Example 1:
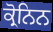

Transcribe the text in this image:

ਕ੍ਰੋਨਿਨ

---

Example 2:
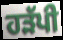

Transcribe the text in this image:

ਹੜੱਪੀ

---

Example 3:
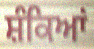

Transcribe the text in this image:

ਸ਼ੰਕਿਆਂ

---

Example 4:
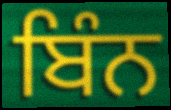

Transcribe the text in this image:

ਬਿੰਨ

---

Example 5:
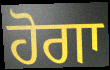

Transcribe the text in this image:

ਹੋਗਾ